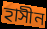
হাসীন